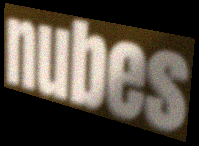
nubes